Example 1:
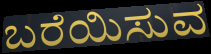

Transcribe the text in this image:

ಬರೆಯಿಸುವ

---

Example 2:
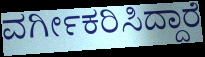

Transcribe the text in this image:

ವರ್ಗೀಕರಿಸಿದ್ದಾರೆ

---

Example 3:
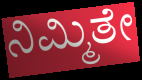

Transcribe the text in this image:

ನಿಮ್ಮಿತೇ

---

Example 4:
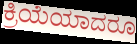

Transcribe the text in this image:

ಕ್ರಿಯೆಯಾದರೂ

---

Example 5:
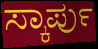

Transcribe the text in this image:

ಸ್ಕಾರ್ಪು